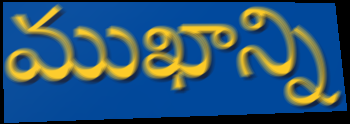
ముఖాన్ని